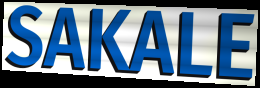
SAKALE